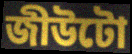
জীউটো